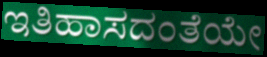
ಇತಿಹಾಸದಂತೆಯೇ